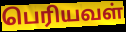
பெரியவள்